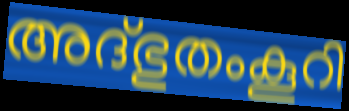
അദ്ഭുതംകൂറി